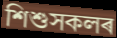
শিশুসকলৰ